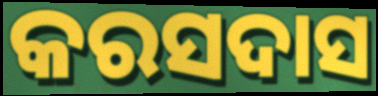
କରସଦାସ